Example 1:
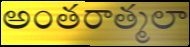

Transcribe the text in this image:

అంతరాత్మలా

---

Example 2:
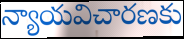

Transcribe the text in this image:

న్యాయవిచారణకు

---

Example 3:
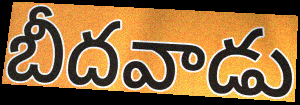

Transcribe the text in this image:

బీదవాడు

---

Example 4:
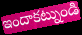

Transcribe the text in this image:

ఇందాకట్నుండి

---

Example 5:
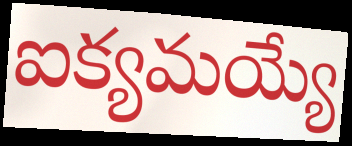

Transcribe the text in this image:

ఐక్యమయ్యే